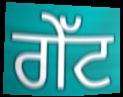
ਗੇੱਟ